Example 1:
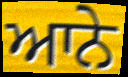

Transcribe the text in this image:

ਆਨੇ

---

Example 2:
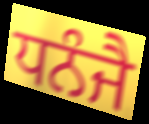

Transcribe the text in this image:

ਧਨੰਜੈ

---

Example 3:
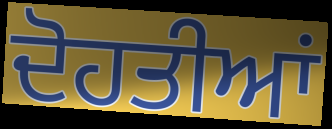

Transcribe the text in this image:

ਦੋਹਤੀਆਂ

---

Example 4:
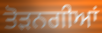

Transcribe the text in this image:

ਤੋੜਨਗੀਆਂ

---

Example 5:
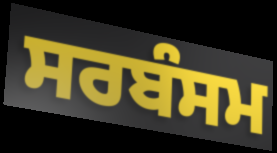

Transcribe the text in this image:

ਸਰਬੰਸਮ